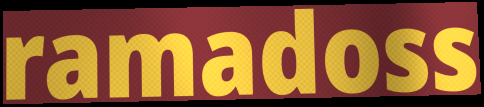
ramadoss